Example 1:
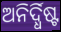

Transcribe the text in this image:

ଅନିର୍ଦ୍ଧିଷ୍ଟ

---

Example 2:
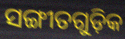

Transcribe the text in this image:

ସଙ୍ଗୀତଗୁଡ଼ିକ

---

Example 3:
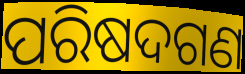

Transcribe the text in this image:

ପରିଷଦଗଣ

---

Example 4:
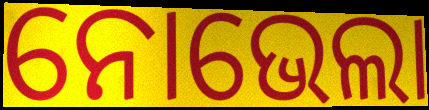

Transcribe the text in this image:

ନୋଭେଲା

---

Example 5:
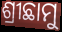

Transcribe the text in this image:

ଶ୍ରୀଛାମୁ